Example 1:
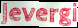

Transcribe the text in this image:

Jevergi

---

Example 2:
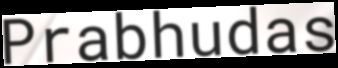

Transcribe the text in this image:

Prabhudas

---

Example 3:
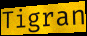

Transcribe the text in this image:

Tigran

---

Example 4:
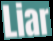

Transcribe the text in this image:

Liar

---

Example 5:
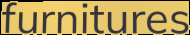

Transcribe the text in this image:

furnitures